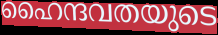
ഹൈന്ദവതയുടെ